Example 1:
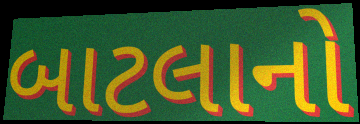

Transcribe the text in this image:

બાટલાનો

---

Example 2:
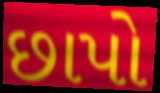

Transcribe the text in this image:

છાપો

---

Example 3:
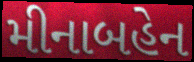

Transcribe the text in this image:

મીનાબહેન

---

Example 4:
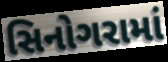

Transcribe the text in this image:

સિનોગરામાં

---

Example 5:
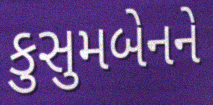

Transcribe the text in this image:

કુસુમબેનને